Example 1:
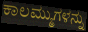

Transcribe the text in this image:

ಕಾಲಮ್ಮುಗಳನ್ನು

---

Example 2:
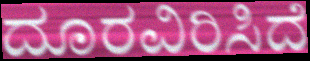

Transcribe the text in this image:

ದೂರವಿರಿಸಿದೆ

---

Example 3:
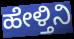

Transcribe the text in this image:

ಹೇಳ್ತಿನಿ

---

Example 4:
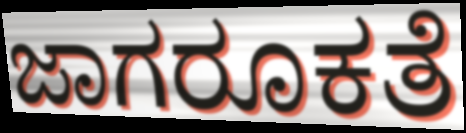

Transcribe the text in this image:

ಜಾಗರೂಕತೆ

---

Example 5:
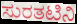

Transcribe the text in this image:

ಸುರತಟಿನಿ